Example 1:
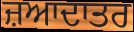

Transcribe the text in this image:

ਜ਼ਆਦਾਤਰ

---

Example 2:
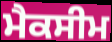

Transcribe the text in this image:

ਮੈਕਸੀਮ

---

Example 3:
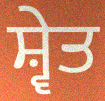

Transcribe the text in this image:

ਸ਼੍ਵੇਤ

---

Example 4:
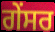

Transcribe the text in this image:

ਗੇਂਸਰ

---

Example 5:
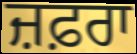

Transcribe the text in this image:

ਜ਼ਫ਼ਰਾ